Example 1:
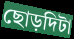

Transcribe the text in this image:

ছোড়দিটা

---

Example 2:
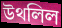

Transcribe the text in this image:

উথলিল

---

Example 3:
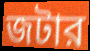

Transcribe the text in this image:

জটার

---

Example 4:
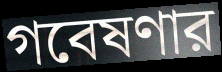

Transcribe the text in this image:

গবেষণার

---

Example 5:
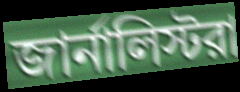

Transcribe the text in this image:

জার্নালিস্টরা